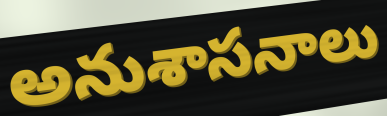
అనుశాసనాలు